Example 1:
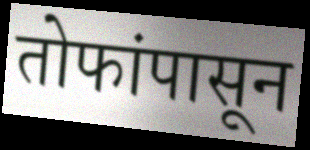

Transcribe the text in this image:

तोफांपासून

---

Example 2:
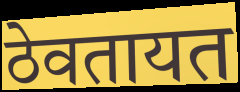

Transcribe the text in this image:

ठेवतायत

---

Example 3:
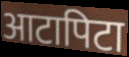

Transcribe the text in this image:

आटापिटा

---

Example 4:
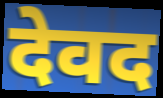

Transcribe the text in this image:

देवद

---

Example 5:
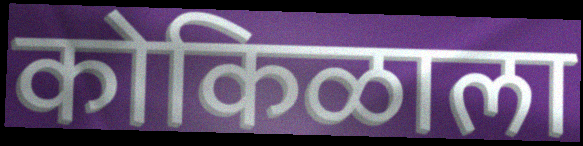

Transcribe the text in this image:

कोकिळाला